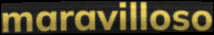
maravilloso